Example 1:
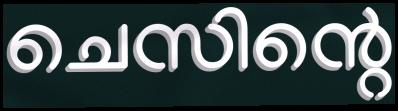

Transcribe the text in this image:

ചെസിന്റെ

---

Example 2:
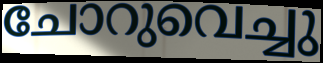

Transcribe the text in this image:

ചോറുവെച്ചു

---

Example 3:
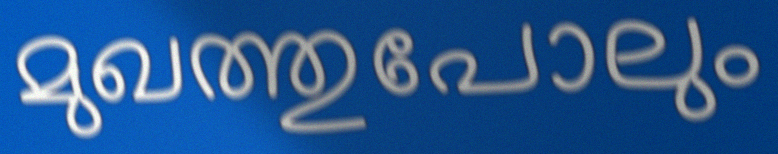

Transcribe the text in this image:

മുഖത്തുപോലും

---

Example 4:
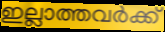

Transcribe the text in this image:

ഇല്ലാത്തവർക്ക്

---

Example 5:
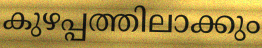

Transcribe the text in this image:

കുഴപ്പത്തിലാക്കും